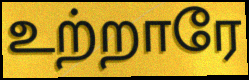
உற்றாரே